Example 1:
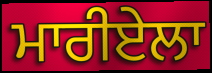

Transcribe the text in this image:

ਮਾਰੀਏਲਾ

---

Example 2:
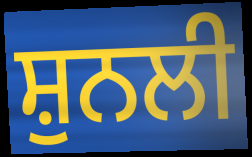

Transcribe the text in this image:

ਸ਼ੁਨਲੀ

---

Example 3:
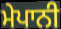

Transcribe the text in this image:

ਮੇਪਾਨੀ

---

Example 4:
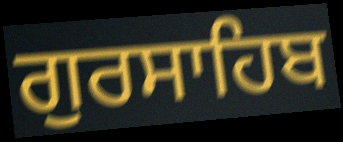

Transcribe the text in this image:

ਗੁਰਸਾਹਿਬ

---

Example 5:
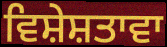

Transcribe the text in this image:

ਵਿਸ਼ੇਸ਼ਤਾਵਾ